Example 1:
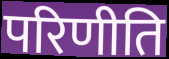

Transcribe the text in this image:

परिणीति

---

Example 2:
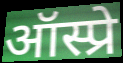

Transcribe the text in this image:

ऑस्प्रे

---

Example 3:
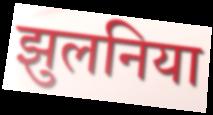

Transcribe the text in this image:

झुलनिया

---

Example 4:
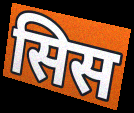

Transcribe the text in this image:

सिस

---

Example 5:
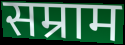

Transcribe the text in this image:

सम्राम